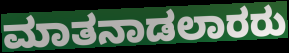
ಮಾತನಾಡಲಾರರು